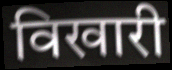
विखारी